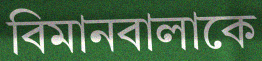
বিমানবালাকে